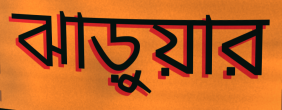
ঝাড়ুয়ার